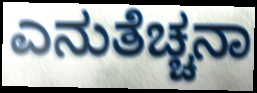
ಎನುತೆಚ್ಚನಾ